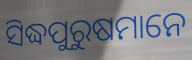
ସିଦ୍ଧପୁରୁଷମାନେ